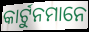
କାର୍ଟୁନମାନେ